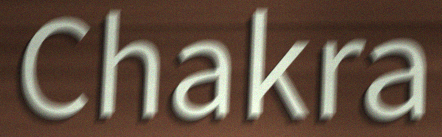
Chakra